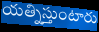
యత్నిస్తుంటారు